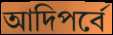
আদিপর্বে